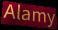
Alamy